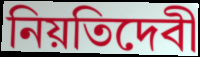
নিয়তিদেবী